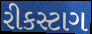
રીકસ્ટાગ